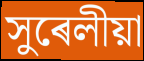
সুৰেলীয়া